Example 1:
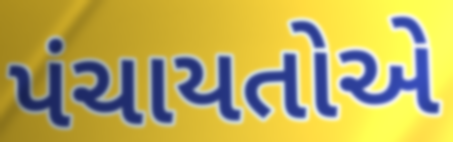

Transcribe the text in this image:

પંચાયતોએ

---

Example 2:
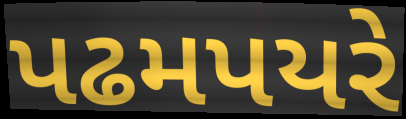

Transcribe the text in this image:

પઢમપયરે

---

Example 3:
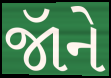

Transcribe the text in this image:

જૉને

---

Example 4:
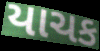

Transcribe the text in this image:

યાચક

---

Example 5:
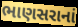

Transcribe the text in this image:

ભાણસરાનાં